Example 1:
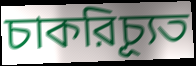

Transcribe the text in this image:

চাকরিচ্যূত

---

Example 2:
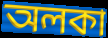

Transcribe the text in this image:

অলকা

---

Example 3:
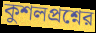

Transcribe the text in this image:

কুশলপ্রশ্নের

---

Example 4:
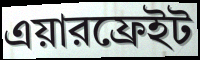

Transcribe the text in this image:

এয়ারফ্রেইট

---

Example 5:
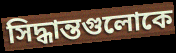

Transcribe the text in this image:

সিদ্ধান্তগুলোকে